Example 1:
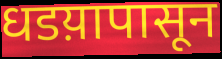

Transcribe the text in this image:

धडय़ापासून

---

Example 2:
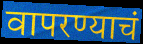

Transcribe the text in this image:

वापरण्याचं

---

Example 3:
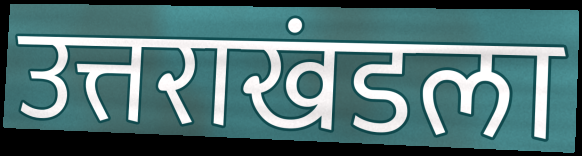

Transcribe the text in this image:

उत्तराखंडला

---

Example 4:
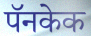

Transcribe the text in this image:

पॅनकेक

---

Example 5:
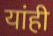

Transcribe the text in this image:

यांही